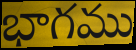
భాగము